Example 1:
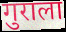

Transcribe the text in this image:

गुराला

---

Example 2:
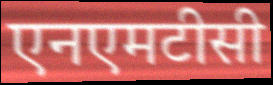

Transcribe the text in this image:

एनएमटीसी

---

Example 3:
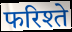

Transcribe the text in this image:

फरिश्ते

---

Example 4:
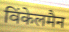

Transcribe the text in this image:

विंकेलमैन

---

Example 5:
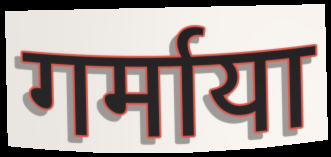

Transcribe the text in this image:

गर्माया